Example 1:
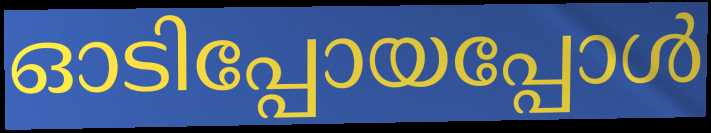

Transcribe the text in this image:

ഓടിപ്പോയപ്പോൾ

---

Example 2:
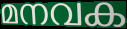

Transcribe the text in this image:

മനവക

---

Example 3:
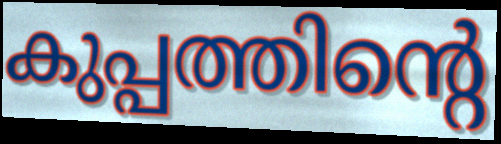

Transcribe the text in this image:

കുപ്പത്തിന്റെ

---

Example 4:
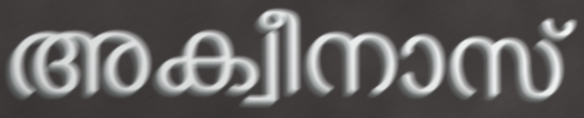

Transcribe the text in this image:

അക്വീനാസ്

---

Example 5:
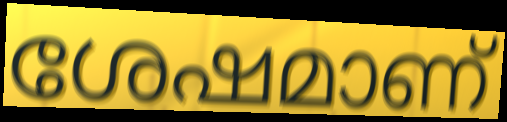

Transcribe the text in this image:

ശേഷമാണ്